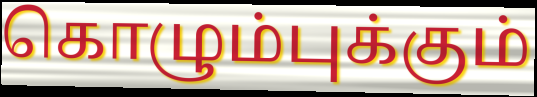
கொழும்புக்கும்